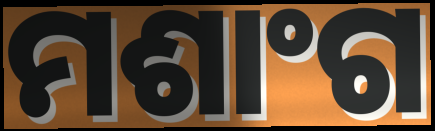
ମଶାଂଗ